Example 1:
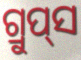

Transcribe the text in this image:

ଗ୍ରୁପ୍‌ସ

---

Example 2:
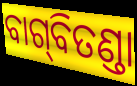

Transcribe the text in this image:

ବାଗ୍‌ବିତଣ୍ଡା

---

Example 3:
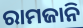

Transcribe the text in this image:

ରାମଜାନି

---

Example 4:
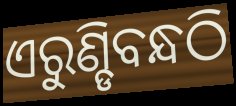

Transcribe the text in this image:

ଏରୁଣ୍ଡିବନ୍ଧଠି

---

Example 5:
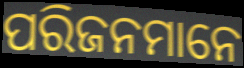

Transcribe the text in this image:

ପରିଜନମାନେ